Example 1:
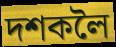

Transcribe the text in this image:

দশকলৈ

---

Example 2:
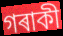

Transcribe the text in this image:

গৰাকী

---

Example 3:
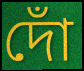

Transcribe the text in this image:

দোঁ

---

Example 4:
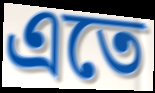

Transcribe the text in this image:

এতে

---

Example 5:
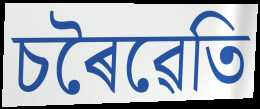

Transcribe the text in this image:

চৰৈৱেতি